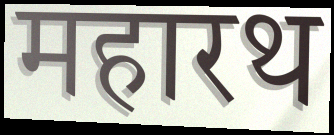
महारथ